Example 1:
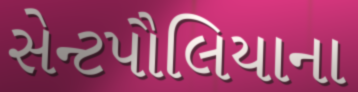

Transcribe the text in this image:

સેન્ટપૌલિયાના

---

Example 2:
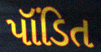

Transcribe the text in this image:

પૉંડિત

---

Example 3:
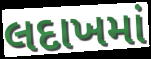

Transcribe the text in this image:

લદાખમાં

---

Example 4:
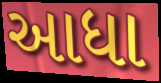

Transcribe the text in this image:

આધા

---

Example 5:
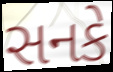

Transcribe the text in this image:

સનકે